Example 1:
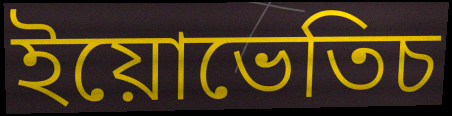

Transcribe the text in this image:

ইয়োভেতিচ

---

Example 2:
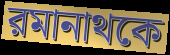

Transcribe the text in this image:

রমানাথকে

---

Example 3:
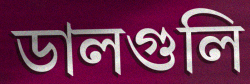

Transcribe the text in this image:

ডালগুলি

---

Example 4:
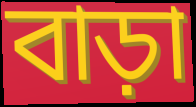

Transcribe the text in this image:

বাড়া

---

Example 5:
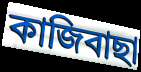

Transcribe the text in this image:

কাজিবাছা